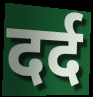
दर्द